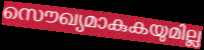
സൌഖ്യമാകുകയുമില്ല